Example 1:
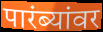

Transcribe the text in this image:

पारंब्यांवर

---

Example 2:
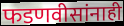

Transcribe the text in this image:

फडणवीसांनाही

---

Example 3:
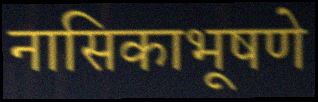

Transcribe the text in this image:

नासिकाभूषणे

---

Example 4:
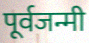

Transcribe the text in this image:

पूर्वजन्मी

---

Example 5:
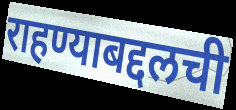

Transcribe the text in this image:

राहण्याबद्दलची